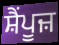
ਸ਼ੈਂਪੂਜ਼